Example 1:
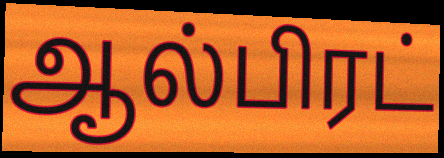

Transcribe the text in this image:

ஆல்பிரட்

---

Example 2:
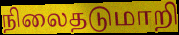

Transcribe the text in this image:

நிலைதடுமாறி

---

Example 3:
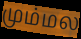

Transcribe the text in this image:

மும்மல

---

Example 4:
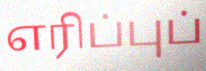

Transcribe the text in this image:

எரிப்புப்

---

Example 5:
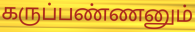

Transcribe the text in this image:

கருப்பண்ணனும்